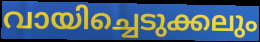
വായിച്ചെടുക്കലും